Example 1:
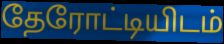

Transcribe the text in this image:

தேரோட்டியிடம்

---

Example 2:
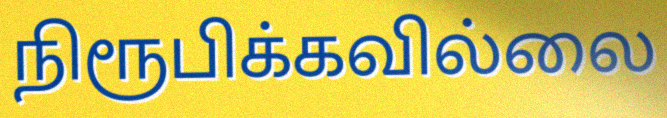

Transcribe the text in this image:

நிரூபிக்கவில்லை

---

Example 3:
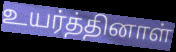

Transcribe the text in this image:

உயர்த்தினாள்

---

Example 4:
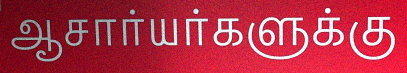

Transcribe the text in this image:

ஆசார்யர்களுக்கு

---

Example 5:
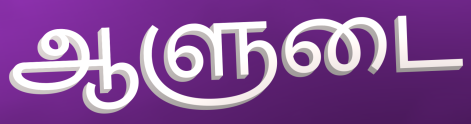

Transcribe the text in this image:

ஆளுடை